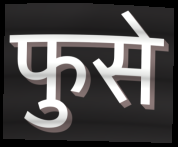
फुसे